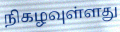
நிகழவுள்ளது